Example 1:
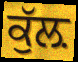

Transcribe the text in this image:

ਕੁੱਲ਼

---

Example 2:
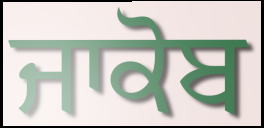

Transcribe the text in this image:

ਜਾਕੋਬ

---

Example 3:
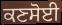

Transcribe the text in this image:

ਕਣਸੋਈ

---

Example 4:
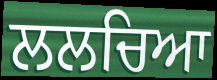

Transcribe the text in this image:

ਲਲਚਿਆ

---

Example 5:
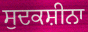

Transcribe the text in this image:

ਸੁਦਕਸ਼ੀਨਾ